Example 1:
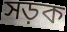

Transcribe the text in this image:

সড়ক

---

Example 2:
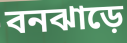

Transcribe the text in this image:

বনঝাড়ে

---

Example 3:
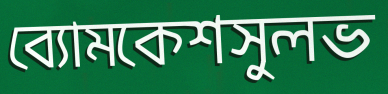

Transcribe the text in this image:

ব্যোমকেশসুলভ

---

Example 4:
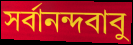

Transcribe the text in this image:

সর্বানন্দবাবু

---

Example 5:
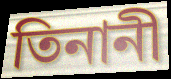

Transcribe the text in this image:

তিনানী